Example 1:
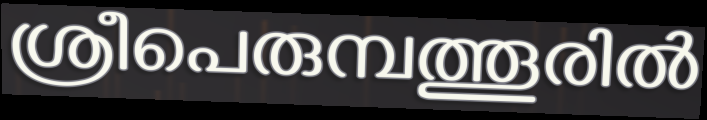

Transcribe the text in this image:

ശ്രീപെരുമ്പത്തൂരിൽ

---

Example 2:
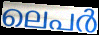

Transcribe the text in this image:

ലെപർ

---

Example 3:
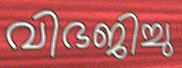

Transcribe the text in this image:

വിഭജിച്ചു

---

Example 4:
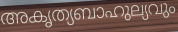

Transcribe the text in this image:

അകൃത്യബാഹുല്യവും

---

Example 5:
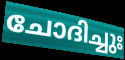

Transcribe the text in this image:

ചോദിച്ചുഃ